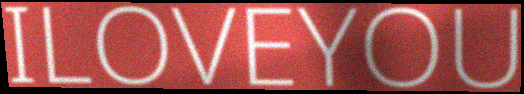
ILOVEYOU